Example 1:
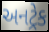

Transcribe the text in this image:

અનટ્રેક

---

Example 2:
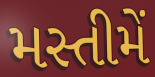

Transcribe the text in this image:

મસ્તીમેં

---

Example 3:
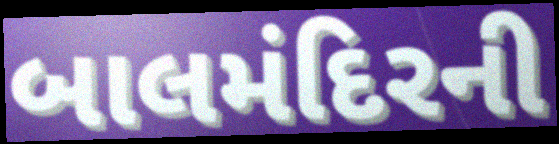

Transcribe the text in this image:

બાલમંદિરની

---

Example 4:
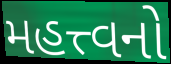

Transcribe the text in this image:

મહત્ત્વનો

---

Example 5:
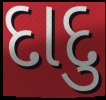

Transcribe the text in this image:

દાદુ